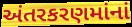
અંતરકરણમાંનાં